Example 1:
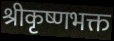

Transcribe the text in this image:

श्रीकृष्णभक्त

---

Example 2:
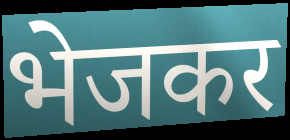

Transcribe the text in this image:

भेजकर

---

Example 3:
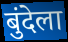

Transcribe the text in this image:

बुंदेला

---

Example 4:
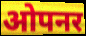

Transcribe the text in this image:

ओपनर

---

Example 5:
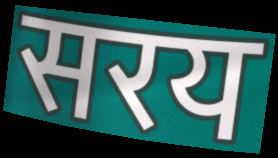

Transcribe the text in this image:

सरय